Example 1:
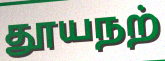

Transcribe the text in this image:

தூயநற்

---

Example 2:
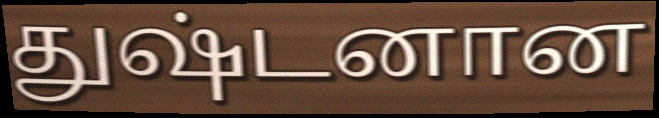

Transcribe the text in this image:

துஷ்டனான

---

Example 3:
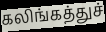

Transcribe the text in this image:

கலிங்கத்துச்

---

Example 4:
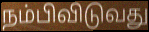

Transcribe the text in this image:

நம்பிவிடுவது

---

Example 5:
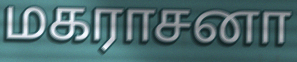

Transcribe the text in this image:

மகராசனா